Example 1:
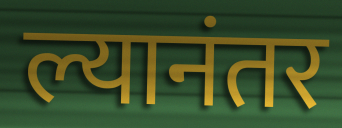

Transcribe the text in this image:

ल्यानंतर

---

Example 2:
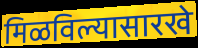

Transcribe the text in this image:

मिळविल्यासारखे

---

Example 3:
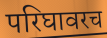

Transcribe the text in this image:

परिघावरच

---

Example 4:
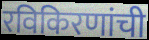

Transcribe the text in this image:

रविकिरणांची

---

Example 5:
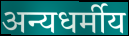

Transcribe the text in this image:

अन्यधर्मीय